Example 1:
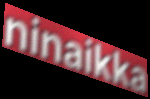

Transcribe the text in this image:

ninaikka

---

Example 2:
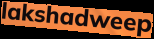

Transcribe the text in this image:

lakshadweep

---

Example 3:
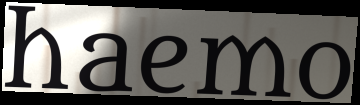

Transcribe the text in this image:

haemo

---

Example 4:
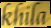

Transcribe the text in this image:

khila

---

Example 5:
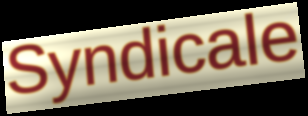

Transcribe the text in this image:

Syndicale